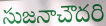
సుజనాచౌదరి